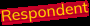
Respondent